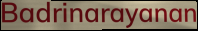
Badrinarayanan